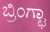
ಬ್ರಿಂಗ್ಟಾ